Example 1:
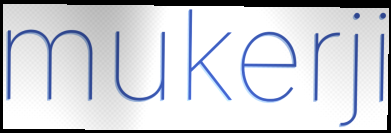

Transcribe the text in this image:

mukerji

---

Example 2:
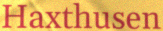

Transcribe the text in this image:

Haxthusen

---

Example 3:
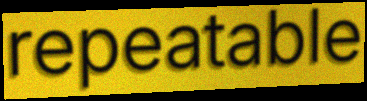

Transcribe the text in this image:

repeatable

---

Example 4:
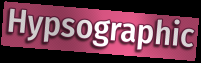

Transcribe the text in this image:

Hypsographic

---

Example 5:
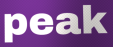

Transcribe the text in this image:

peak